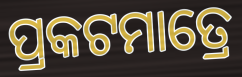
ପ୍ରକଟମାତ୍ରେ